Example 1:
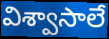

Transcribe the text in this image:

విశ్వాసాలే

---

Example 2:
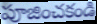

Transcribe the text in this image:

పూజించకండి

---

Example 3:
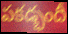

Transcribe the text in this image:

పకడ్భందీ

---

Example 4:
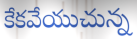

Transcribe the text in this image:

కేకవేయుచున్న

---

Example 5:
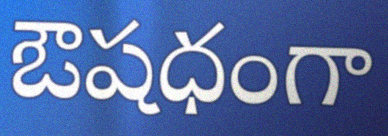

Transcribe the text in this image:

ఔషధంగా